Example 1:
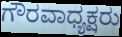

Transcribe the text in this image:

ಗೌರವಾಧ್ಯಕ್ಷರು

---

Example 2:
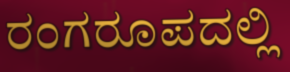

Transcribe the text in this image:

ರಂಗರೂಪದಲ್ಲಿ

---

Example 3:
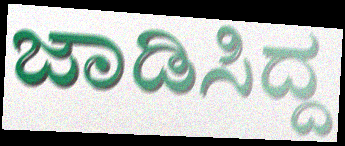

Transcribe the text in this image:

ಜಾಡಿಸಿದ್ದ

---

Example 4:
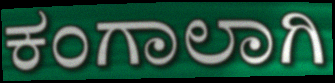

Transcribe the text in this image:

ಕಂಗಾಲಾಗಿ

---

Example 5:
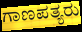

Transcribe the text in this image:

ಗಾಣಪತ್ಯರು